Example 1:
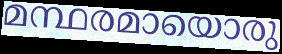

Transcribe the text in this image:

മന്ഥരമായൊരു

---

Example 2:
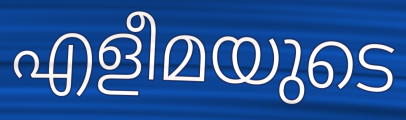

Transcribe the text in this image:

എളീമയുടെ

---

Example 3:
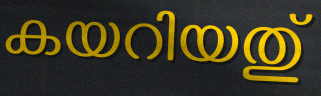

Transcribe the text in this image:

കയറിയതു്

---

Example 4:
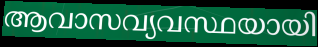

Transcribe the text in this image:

ആവാസവ്യവസ്ഥയായി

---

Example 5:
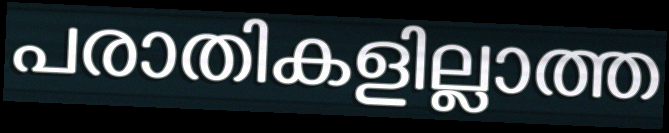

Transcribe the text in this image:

പരാതികളില്ലാത്ത